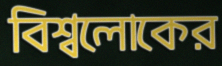
বিশ্বলোকের